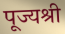
पूज्यश्री